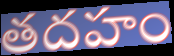
తదహం